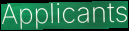
Applicants